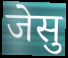
जेसु